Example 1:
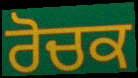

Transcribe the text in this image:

ਰੋਚਕ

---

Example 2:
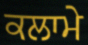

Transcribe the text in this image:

ਕਲਾਮੇ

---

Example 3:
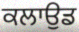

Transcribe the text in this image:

ਕਲਾਉਡ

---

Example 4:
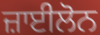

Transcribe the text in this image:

ਜ਼ਾਈਲੋਨ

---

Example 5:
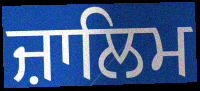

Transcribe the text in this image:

ਜ਼ਾਲਿਮ